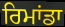
ਰਿਮਾਂਡਾ